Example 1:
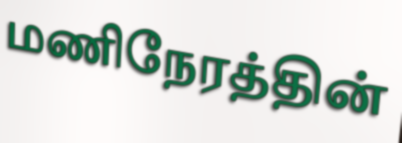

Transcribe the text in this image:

மணிநேரத்தின்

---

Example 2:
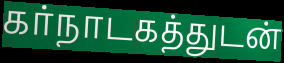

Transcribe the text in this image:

கர்நாடகத்துடன்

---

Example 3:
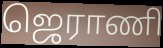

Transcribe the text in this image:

ஜெராணி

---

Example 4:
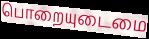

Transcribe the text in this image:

பொறையுடைமை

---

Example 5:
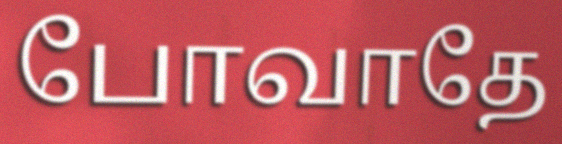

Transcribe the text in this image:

போவாதே